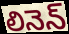
లినెన్